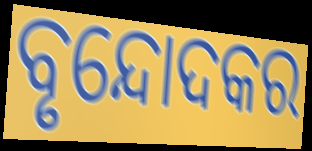
ବୃନ୍ଦୋଦକର